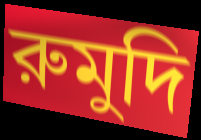
রুমুদি